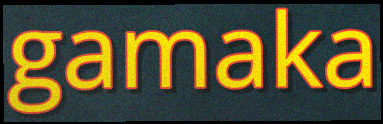
gamaka